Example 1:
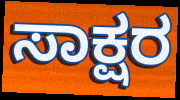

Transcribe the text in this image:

ಸಾಕ್ಷರ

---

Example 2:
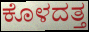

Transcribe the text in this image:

ಕೊಳದತ್ತ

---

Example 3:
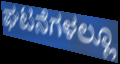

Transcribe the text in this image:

ಘಟನೆಗಳಲ್ಲೂ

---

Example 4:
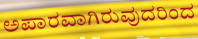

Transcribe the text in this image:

ಅಪಾರವಾಗಿರುವುದರಿಂದ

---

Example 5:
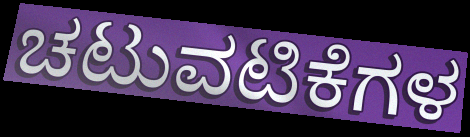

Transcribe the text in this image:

ಚಟುವಟಿಕೆಗಳ